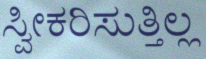
ಸ್ವೀಕರಿಸುತ್ತಿಲ್ಲ